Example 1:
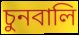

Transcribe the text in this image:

চুনবালি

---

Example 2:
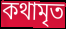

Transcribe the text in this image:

কথামৃত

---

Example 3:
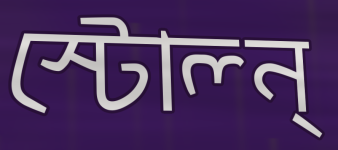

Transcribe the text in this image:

স্টোল্ন্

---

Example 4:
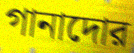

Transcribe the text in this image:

গানাদোর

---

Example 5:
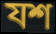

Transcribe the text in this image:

যশ